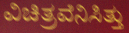
ವಿಚಿತ್ರವೆನಿಸಿತ್ತು